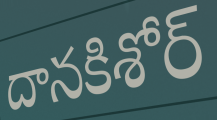
దానకిశోర్